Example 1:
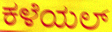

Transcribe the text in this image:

ಕಳೆಯಲ್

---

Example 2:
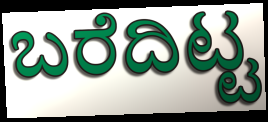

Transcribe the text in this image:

ಬರೆದಿಟ್ಟ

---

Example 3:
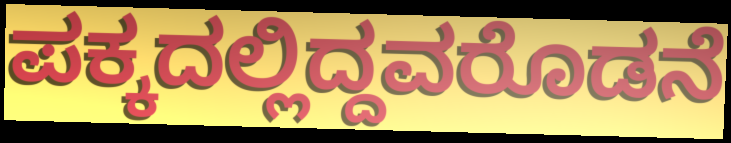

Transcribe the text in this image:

ಪಕ್ಕದಲ್ಲಿದ್ದವರೊಡನೆ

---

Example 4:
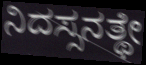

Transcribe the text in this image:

ನಿದಸ್ಸನತ್ಥೇ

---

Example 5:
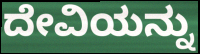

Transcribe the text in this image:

ದೇವಿಯನ್ನು